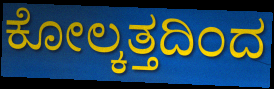
ಕೋಲ್ಕತ್ತದಿಂದ